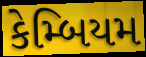
કેમ્બિયમ